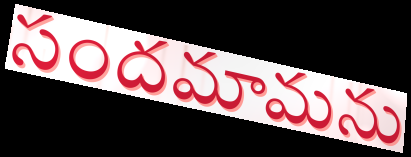
సందమామను